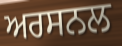
ਅਰਸਨਲ